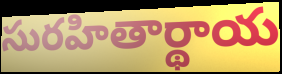
సురహితార్థాయ